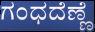
ಗಂಧದೆಣ್ಣೆ